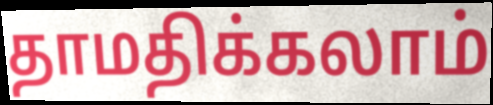
தாமதிக்கலாம்